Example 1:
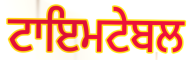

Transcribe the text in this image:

ਟਾਇਮਟੇਬਲ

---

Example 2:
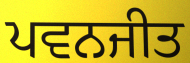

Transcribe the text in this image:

ਪਵਨਜੀਤ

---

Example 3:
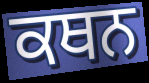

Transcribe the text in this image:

ਕਥਨ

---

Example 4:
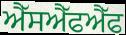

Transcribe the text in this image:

ਐੱਸਐੱਫਐੱਫ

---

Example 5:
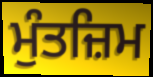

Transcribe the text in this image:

ਮੁੰਤਜ਼ਿਮ